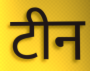
टीन